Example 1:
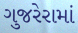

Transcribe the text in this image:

ગુજરેરામાં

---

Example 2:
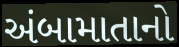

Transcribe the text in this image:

અંબામાતાનો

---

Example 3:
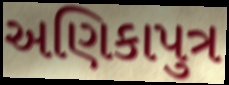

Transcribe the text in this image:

અણિકાપુત્ર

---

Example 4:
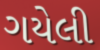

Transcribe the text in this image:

ગયેલી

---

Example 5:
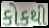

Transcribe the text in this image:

કોકથી